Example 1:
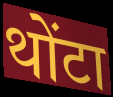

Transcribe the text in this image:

थोंटा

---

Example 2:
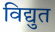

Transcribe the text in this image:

विद्युत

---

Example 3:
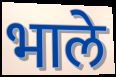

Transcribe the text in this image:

भाले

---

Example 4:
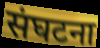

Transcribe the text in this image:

संघटना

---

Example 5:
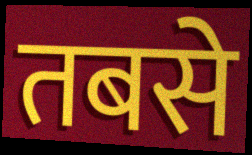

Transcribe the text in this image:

तबसे